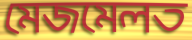
মেজমেলত